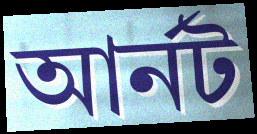
আর্নট